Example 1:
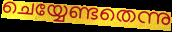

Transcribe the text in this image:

ചെയ്യേണ്ടതെന്നു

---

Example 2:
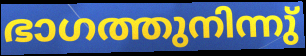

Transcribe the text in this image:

ഭാഗത്തുനിന്നു്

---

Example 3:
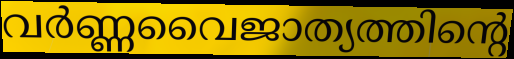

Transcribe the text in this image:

വർണ്ണവൈജാത്യത്തിന്റെ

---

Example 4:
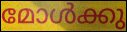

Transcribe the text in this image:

മോൾക്കു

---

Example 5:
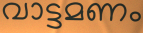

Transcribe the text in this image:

വാട്ടമണം